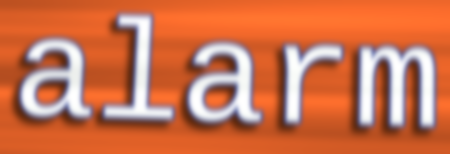
alarm